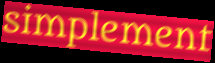
simplement